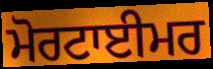
ਮੋਰਟਾਈਮਰ